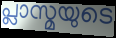
പ്ലാസ്മയുടെ